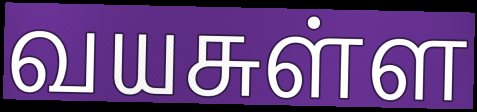
வயசுள்ள